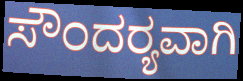
ಸೌಂದರ‍್ಯವಾಗಿ